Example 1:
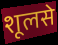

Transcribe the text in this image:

शूलसे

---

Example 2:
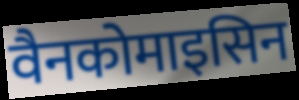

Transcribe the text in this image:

वैनकोमाइसिन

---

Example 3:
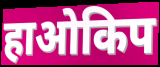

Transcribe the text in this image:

हाओकिप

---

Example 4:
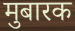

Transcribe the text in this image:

मुबारक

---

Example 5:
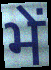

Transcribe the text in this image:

भें